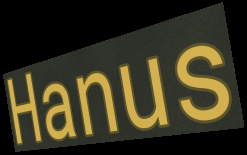
Hanus